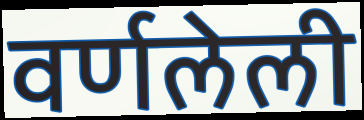
वर्णलेली